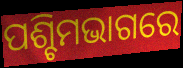
ପଶ୍ଚିମଭାଗରେ